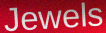
Jewels